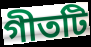
গীতটি